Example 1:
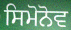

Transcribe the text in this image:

ਸਿਮੋਨੋਵ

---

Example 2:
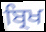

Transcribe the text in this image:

ਬ੍ਰਿਖ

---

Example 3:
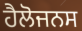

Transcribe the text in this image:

ਹੈਲੋਜਨਸ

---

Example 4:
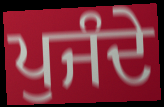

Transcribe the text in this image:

ਪੁਜੰਦੇ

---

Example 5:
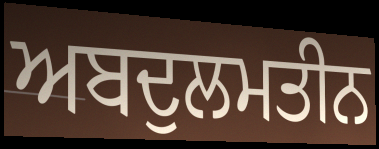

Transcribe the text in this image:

ਅਬਦੁਲਮਤੀਨ